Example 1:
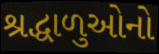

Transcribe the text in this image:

શ્રદ્ધાળુઓનો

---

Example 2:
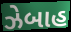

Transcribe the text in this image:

ઝેબાહ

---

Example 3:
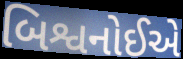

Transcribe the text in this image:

બિશ્વનોઈએ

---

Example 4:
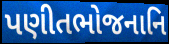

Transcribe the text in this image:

પણીતભોજનાનિ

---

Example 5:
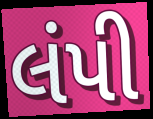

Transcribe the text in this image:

લંપી